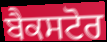
ਬੈਕਸਟੋਰ